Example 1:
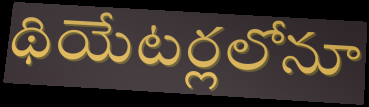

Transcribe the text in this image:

థియేటర్లలోనూ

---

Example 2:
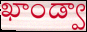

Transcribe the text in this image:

ఖాండ్వా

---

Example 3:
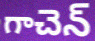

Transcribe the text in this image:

గాచెన్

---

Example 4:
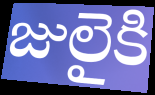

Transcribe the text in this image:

జులైకి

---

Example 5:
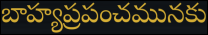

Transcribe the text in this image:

బాహ్యప్రపంచమునకు